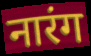
नारंग